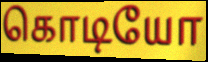
கொடியோ